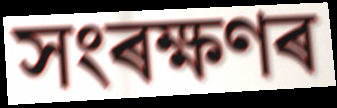
সংৰক্ষণৰ